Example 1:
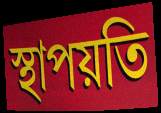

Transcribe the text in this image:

স্থাপয়তি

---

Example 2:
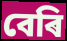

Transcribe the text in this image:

বেৰি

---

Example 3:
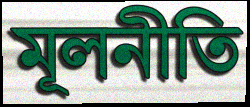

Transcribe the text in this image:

মূলনীতি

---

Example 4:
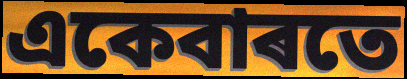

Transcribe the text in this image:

একেবাৰতে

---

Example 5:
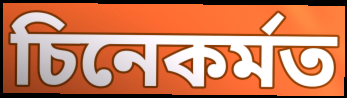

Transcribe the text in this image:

চিনেকৰ্মত